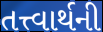
તત્ત્વાર્થની